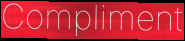
Compliment